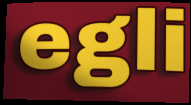
egli